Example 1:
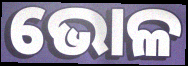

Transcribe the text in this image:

ଭୋଳ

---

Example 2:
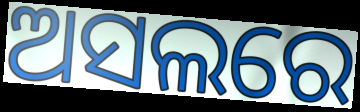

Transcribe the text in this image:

ଅସଲରେ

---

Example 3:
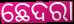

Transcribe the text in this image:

ଛେଦରା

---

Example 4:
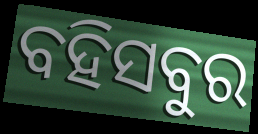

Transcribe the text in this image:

ବହିସବୁର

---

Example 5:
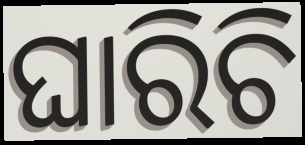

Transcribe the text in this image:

ଘାରିଚି